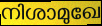
നിശാമുഖേ